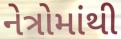
નેત્રોમાંથી